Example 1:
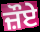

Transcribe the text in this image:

ਜ਼ੌਏ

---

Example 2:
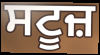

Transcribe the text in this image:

ਸਟੂਜ਼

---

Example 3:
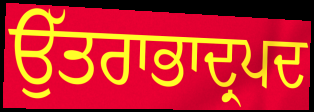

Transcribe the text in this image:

ਉੱਤਰਾਭਾਦ੍ਰਪਦ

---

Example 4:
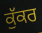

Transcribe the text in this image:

ਕੁੱਕਰ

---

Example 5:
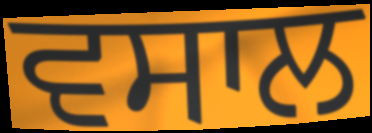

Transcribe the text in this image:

ਵਸਾਲ